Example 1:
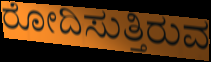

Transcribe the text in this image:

ರೋದಿಸುತ್ತಿರುವ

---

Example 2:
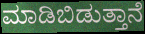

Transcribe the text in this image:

ಮಾಡಿಬಿಡುತ್ತಾನೆ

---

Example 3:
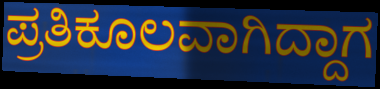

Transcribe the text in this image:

ಪ್ರತಿಕೂಲವಾಗಿದ್ದಾಗ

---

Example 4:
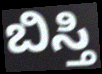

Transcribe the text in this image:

ಬಿಸ್ತಿ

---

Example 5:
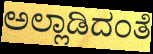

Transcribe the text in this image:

ಅಲ್ಲಾಡಿದಂತೆ